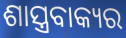
ଶାସ୍ତ୍ରବାକ୍ୟର